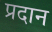
प्रदान